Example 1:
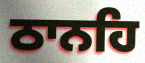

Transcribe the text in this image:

ਠਾਨਹਿ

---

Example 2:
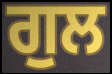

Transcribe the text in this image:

ਗੁਲ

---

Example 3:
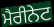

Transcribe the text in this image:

ਮੈਰੀਨੇਟ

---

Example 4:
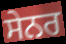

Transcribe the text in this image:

ਸੇਨਰ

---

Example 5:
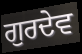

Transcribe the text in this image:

ਗੁਰਦੇਵ